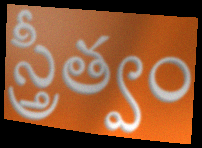
స్త్రీత్వం